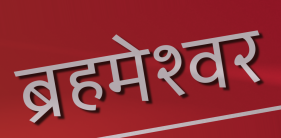
ब्रहमेश्वर